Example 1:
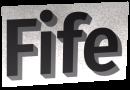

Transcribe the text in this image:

Fife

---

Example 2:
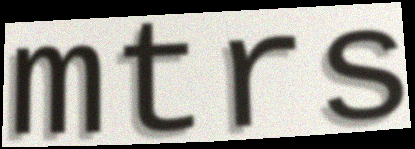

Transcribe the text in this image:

mtrs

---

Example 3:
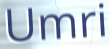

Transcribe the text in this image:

Umri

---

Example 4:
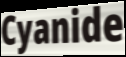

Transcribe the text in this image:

Cyanide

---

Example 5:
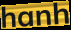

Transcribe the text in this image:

hanh